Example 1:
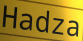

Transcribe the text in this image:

Hadza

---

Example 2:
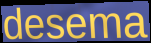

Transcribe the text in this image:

desema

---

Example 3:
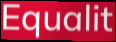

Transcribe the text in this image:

Equalit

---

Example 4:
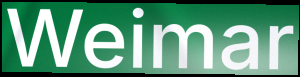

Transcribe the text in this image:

Weimar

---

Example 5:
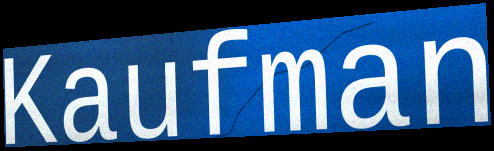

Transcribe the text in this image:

Kaufman